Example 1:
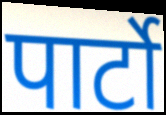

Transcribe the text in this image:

पार्टो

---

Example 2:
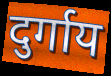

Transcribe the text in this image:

दुर्गाय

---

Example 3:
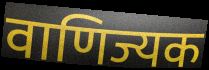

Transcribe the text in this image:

वाणिज्यक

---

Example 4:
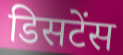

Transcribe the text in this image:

डिसटेंस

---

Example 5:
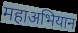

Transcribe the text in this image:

महाअभियान